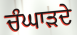
ਚੰਘਾੜਦੇ